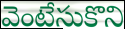
వెంటేసుకొని